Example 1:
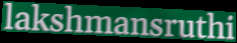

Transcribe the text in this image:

lakshmansruthi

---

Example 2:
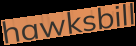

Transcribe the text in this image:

hawksbill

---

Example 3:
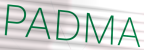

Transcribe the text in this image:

PADMA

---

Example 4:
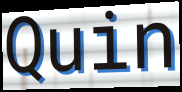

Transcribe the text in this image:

Quin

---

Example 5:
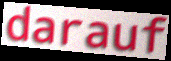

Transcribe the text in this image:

darauf